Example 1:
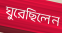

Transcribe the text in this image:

ঘুরেছিলেন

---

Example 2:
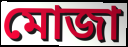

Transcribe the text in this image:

মোজা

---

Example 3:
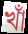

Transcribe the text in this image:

খাঁ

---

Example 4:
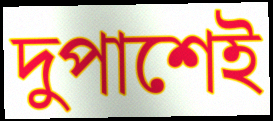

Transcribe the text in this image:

দুপাশেই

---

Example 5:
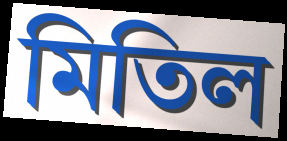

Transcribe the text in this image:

মিতিল